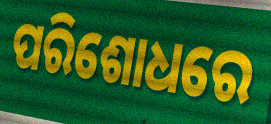
ପରିଶୋଧରେ